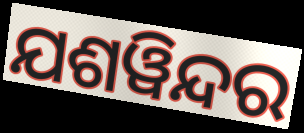
ଯଶୱିନ୍ଦର